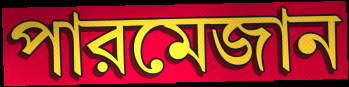
পারমেজান